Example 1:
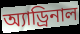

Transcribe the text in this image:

অ্যাড্রিনাল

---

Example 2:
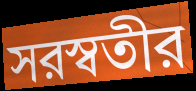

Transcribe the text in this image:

সরস্বতীর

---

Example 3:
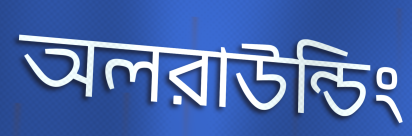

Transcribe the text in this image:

অলরাউন্ডিং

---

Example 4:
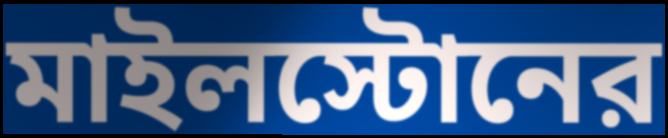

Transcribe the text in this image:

মাইলস্টোনের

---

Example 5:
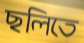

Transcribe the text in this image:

ছলিতে